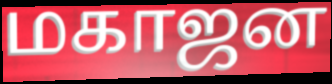
மகாஜன